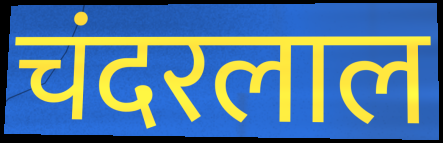
चंदरलाल